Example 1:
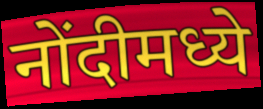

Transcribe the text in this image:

नोंदीमध्ये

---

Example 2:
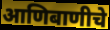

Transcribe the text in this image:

आणिबाणीचे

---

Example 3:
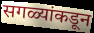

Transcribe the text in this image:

सगळ्यांकडून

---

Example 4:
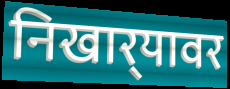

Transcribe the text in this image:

निखार्‍यावर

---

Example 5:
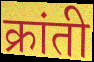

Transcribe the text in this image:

क्रांती